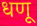
धणू